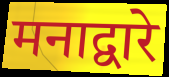
मनाद्वारे